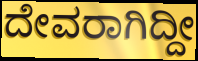
ದೇವರಾಗಿದ್ದೀ